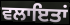
ਵਲਾਇਤਾਂ